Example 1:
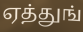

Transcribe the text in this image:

ஏத்துங்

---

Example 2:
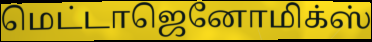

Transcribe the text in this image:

மெட்டாஜெனோமிக்ஸ்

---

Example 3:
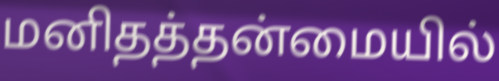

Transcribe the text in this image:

மனிதத்தன்மையில்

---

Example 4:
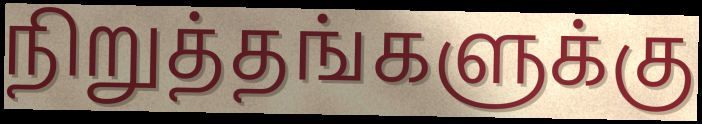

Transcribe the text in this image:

நிறுத்தங்களுக்கு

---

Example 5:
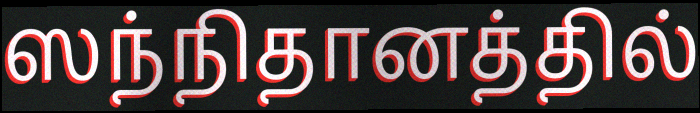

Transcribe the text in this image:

ஸந்நிதானத்தில்